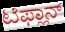
ಟೆಫ್ಲಾನ್